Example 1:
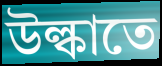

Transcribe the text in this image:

উল্কাতে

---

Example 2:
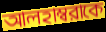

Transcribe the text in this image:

আলহাম্বরাকে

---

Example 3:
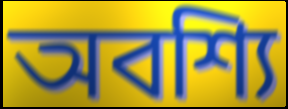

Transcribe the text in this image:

অবশ্যি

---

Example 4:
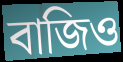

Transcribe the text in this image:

বাজিও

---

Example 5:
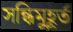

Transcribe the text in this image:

সন্ধিমুহূর্ত